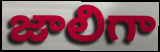
జాలిగా